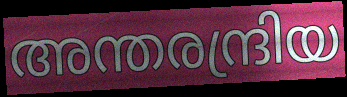
അന്തരന്ദ്രിയ